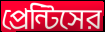
প্রেন্টিসের